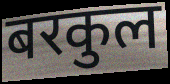
बरकुल